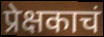
प्रेक्षकाचं